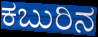
ಕಬುರಿನ